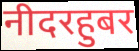
नीदरहुबर